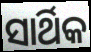
ସାର୍ଥିକ